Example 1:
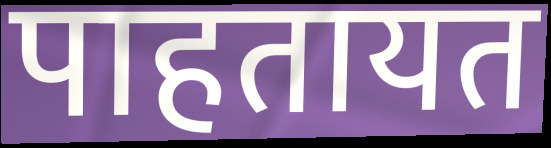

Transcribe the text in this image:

पाहतायत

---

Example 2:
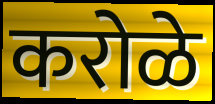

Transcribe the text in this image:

करोळे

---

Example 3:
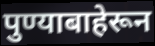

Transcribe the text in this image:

पुण्याबाहेरून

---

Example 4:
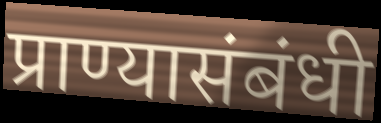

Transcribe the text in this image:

प्राण्यासंबंधी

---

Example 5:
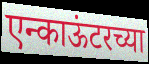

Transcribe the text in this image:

एन्काऊंटरच्या